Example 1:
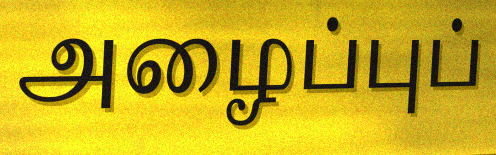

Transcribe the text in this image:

அழைப்புப்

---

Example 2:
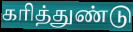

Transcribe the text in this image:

கரித்துண்டு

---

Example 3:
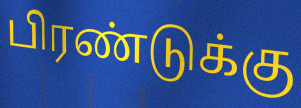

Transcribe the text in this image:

பிரண்டுக்கு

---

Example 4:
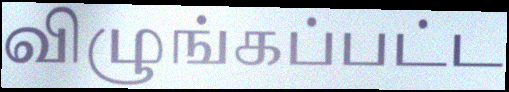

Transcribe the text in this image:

விழுங்கப்பட்ட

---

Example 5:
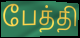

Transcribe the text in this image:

பேத்தி